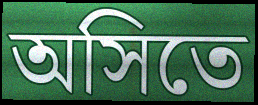
অসিতে